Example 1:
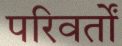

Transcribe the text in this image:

परिवर्तों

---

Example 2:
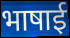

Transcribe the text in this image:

भाषाई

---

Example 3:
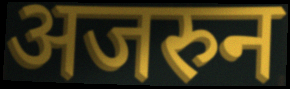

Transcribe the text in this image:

अजरुन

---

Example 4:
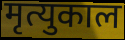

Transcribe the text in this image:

मृत्युकाल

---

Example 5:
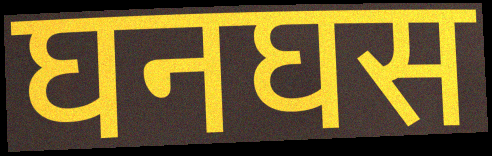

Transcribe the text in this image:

घनघस